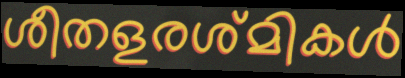
ശീതളരശ്മികൾ